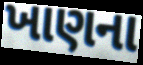
ખાણના